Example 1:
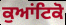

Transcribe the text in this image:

ਕੁਆਂਟਿਕੋ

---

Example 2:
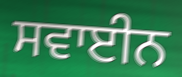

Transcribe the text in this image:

ਸਵਾਈਨ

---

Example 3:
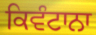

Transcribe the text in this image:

ਕਿਵੰਟਾਨਾ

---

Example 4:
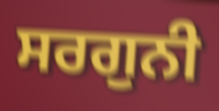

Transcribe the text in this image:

ਸਰਗੁਨੀ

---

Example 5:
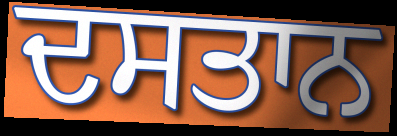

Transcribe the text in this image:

ਦਸਤਾਨ